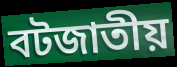
বটজাতীয়